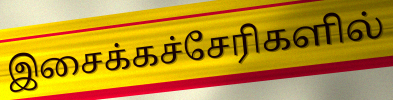
இசைக்கச்சேரிகளில்